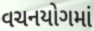
વચનયોગમાં